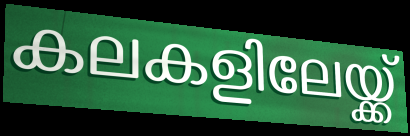
കലകളിലേയ്ക്ക്